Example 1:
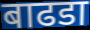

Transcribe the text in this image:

बाढडा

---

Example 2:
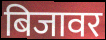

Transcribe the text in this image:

बिजावर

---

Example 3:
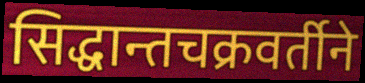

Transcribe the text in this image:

सिद्धान्तचक्रवर्तीने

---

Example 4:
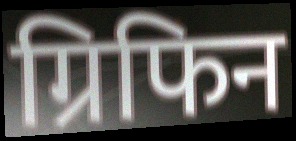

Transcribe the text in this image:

ग्रिफिन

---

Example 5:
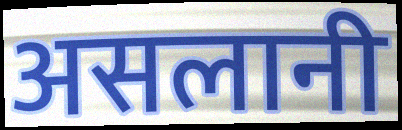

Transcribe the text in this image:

असलानी